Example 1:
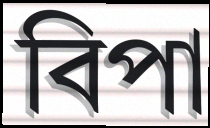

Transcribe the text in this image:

বিপা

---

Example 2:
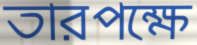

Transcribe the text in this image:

তারপক্ষে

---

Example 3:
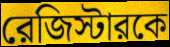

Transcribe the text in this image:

রেজিস্টারকে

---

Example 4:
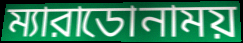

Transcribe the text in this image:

ম্যারাডোনাময়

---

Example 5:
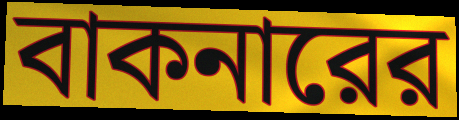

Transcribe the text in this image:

বাকনারের